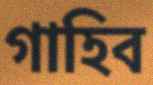
গাহিব